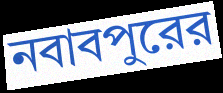
নবাবপুরের